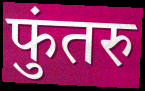
फुंतरु